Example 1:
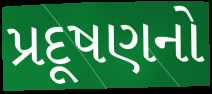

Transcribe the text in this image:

પ્રદૂષણનો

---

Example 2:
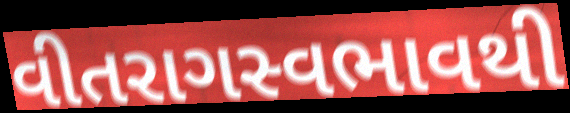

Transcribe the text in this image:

વીતરાગસ્વભાવથી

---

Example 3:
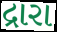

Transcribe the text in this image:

દ્રારા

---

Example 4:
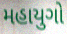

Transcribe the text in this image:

મહાયુગો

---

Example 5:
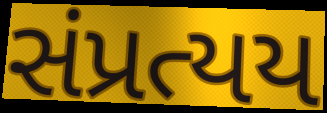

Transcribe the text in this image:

સંપ્રત્યય